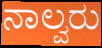
ನಾಲ್ವರು